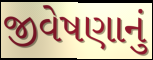
જીવેષણાનું